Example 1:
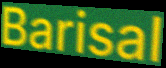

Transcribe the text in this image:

Barisal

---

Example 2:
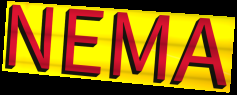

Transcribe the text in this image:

NEMA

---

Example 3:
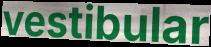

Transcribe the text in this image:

vestibular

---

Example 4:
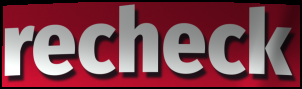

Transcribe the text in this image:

recheck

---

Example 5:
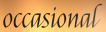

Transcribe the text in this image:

occasional